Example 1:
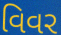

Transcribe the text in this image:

વિવર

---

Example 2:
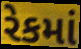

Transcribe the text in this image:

રેકમાં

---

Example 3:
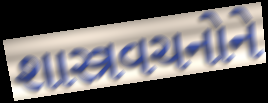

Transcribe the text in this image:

શાસ્ત્રવચનોને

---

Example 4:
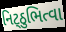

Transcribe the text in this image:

નિટ્ઠુભિત્વા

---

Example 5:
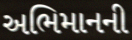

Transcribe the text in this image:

અભિમાનની